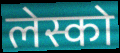
लेस्को